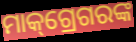
ମାକ୍‌ଗ୍ରେଗରଙ୍କ